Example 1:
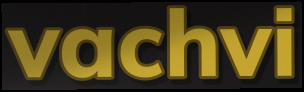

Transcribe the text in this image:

vachvi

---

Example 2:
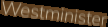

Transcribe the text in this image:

Westminister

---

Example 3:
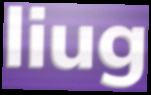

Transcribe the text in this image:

liug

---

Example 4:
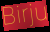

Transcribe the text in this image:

Birju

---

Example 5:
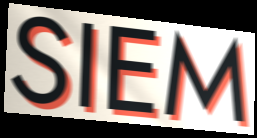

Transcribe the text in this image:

SIEM